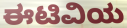
ಈಟಿವಿಯ